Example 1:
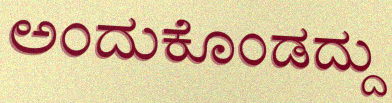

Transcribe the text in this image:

ಅಂದುಕೊಂಡದ್ದು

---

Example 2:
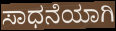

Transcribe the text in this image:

ಸಾಧನೆಯಾಗಿ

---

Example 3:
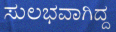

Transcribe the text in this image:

ಸುಲಭವಾಗಿದ್ದ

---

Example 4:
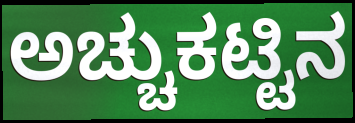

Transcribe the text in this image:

ಅಚ್ಚುಕಟ್ಟಿನ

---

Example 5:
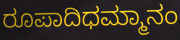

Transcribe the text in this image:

ರೂಪಾದಿಧಮ್ಮಾನಂ